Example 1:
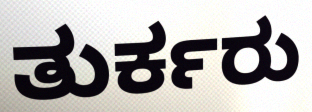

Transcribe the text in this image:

ತುರ್ಕರು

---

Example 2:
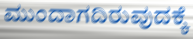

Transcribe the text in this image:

ಮುಂದಾಗದಿರುವುದಕ್ಕೆ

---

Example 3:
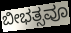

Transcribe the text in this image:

ಬೀಭತ್ಸವೂ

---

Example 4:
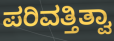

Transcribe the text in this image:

ಪರಿವತ್ತಿತ್ವಾ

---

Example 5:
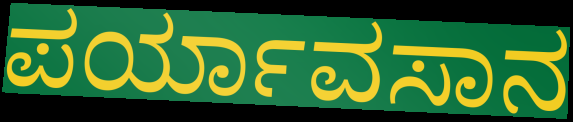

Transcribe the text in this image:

ಪರ್ಯಾವಸಾನ